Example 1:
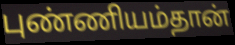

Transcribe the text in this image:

புண்ணியம்தான்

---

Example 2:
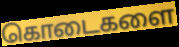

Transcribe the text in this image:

கொடைகளை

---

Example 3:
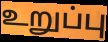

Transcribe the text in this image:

உறுப்பு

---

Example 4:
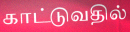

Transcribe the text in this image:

காட்டுவதில்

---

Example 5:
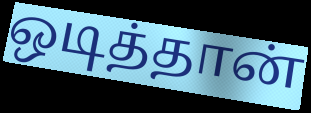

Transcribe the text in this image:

ஒடித்தான்